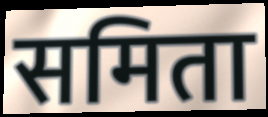
समिता